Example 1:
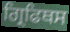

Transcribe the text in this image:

ਗ੍ਰਿਫਿਥਸ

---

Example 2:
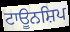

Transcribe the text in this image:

ਟਾਊਨਸ਼ਿਪ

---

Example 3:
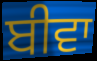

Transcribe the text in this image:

ਬੀਵਾ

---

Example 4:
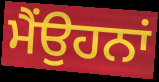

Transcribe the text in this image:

ਮੈਂਉਹਨਾਂ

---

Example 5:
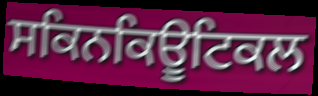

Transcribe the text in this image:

ਸਕਿਨਕਿਊਟਿਕਲ